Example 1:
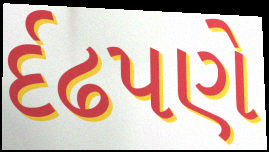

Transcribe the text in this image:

ર્દઢપણે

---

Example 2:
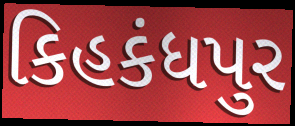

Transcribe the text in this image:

કિહકંધપુર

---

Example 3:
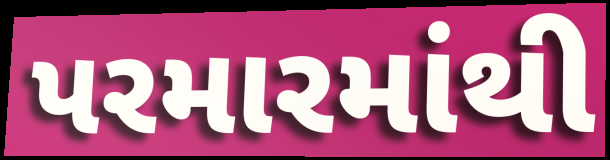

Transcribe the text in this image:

પરમારમાંથી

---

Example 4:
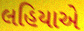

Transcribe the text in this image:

લહિયાએ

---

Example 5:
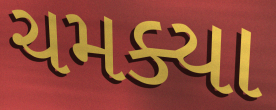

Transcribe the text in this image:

ચમક્યા